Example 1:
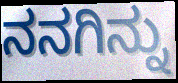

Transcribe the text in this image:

ನನಗಿನ್ನು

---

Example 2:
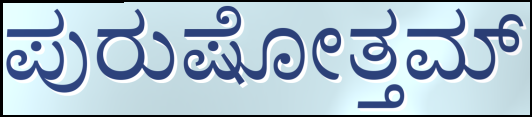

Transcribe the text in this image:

ಪುರುಷೋತ್ತಮ್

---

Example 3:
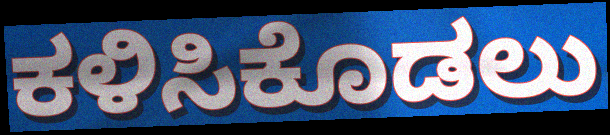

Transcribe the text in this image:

ಕಳಿಸಿಕೊಡಲು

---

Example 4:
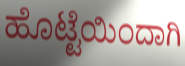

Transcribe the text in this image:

ಹೊಟ್ಟೆಯಿಂದಾಗಿ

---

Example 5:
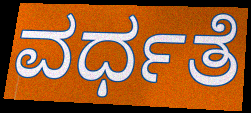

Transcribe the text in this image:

ವರ್ಧತೆ